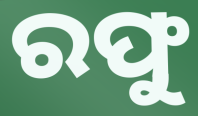
ରଫୁ